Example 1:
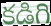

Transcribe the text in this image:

కడిగి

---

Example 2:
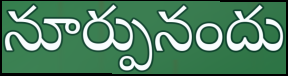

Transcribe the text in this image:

నూర్పునందు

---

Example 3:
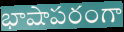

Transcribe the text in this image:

భాషాపరంగా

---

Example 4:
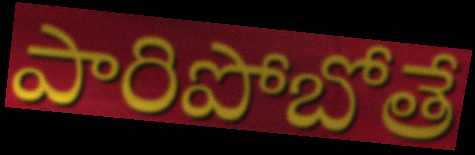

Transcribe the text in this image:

పారిపోబోతే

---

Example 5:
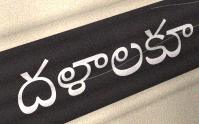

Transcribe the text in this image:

దళాలకూ